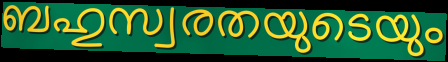
ബഹുസ്വരതയുടെയും